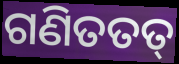
ଗଣିତତତ୍